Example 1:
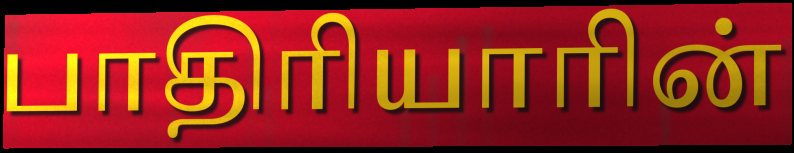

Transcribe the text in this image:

பாதிரியாரின்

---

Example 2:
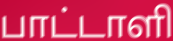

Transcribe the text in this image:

பாட்டாளி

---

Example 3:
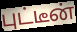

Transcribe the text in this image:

புட்டீன்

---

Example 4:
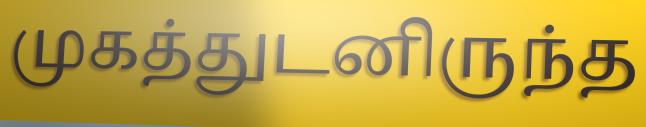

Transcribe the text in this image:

முகத்துடனிருந்த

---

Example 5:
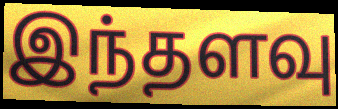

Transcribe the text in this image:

இந்தளவு